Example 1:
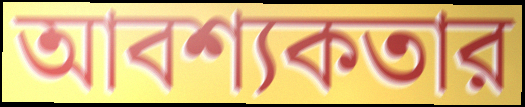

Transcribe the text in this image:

আবশ্যকতার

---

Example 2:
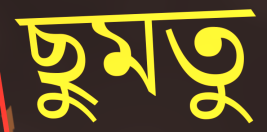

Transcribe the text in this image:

ছুমতু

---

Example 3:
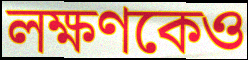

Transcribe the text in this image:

লক্ষণকেও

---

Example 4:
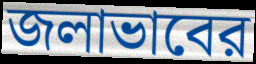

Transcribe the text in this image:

জলাভাবের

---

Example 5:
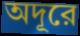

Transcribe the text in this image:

অদূরে